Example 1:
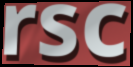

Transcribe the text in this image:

rsc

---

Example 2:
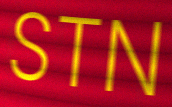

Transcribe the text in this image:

STN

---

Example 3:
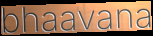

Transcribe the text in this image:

bhaavana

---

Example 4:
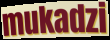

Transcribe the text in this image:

mukadzi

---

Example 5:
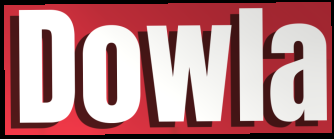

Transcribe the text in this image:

Dowla